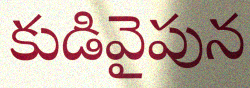
కుడివైపున